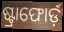
ଷ୍ଟ୍ରାଫୋର୍ଡ଼